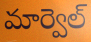
మార్వెల్